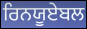
ਰਿਨਯੂਏਬਲ